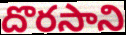
దొరసాని